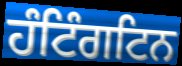
ਹੰਟਿੰਗਟਿਨ